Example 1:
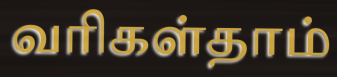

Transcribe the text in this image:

வரிகள்தாம்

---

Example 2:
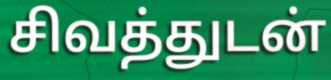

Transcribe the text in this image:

சிவத்துடன்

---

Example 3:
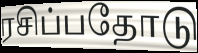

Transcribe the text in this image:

ரசிப்பதோடு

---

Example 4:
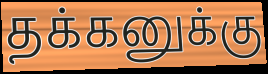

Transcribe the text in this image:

தக்கனுக்கு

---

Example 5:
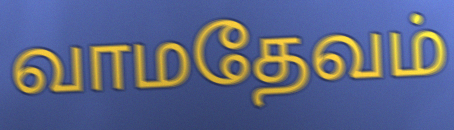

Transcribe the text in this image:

வாமதேவம்